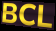
BCL